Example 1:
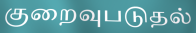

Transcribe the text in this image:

குறைவுபடுதல்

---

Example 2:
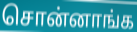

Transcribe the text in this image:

சொன்னாங்க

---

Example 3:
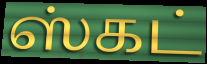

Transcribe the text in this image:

ஸ்கட்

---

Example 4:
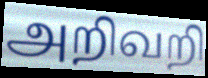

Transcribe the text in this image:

அறிவறி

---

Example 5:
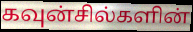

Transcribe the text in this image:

கவுன்சில்களின்